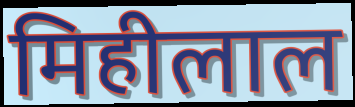
मिहीलाल